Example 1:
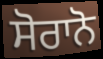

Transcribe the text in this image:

ਸੋਰਾਨੋ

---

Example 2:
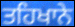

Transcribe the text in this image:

ਤਹਿਖਾਨੇ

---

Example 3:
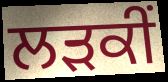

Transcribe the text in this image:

ਲੜਕੀਂ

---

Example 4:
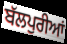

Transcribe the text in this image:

ਬੱਲਪੁਰੀਆਂ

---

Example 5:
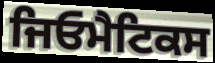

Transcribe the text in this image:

ਜਿਓਮੈਟਿਕਸ